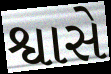
શ્વાસે